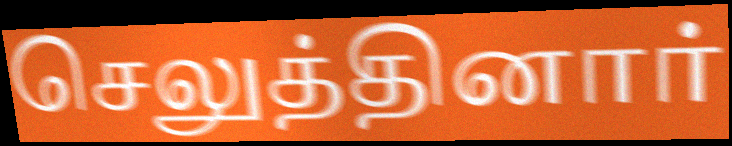
செலுத்தினார்